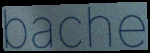
bache